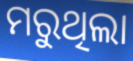
ମରୁଥିଲା